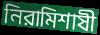
নিরামিশাষী